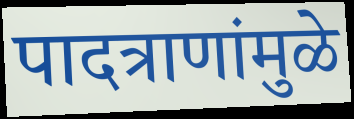
पादत्राणांमुळे